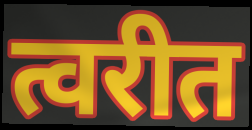
त्वरीत